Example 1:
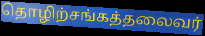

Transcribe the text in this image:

தொழிற்சங்கத்தலைவர்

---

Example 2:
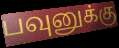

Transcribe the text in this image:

பவுனுக்கு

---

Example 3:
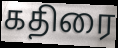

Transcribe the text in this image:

கதிரை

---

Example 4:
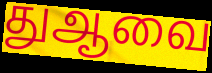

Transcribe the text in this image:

துஆவை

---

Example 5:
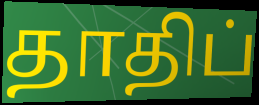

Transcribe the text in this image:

தாதிப்